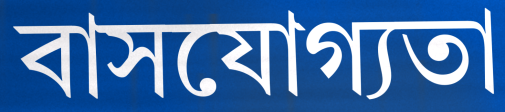
বাসযোগ্যতা